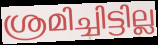
ശ്രമിച്ചിട്ടില്ല